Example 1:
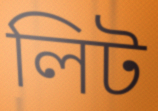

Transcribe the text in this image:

লিট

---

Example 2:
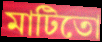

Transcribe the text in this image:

মাটিতো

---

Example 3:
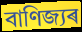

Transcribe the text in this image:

বাণিজ্যৰ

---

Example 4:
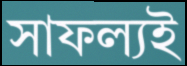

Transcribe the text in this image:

সাফল্যই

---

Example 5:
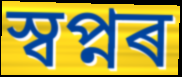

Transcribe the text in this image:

স্বপ্নৰ